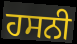
ਹਸਨੀ